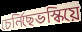
চেৰ্নিছেভস্কিয়ে